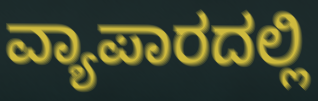
ವ್ಯಾಪಾರದಲ್ಲಿ